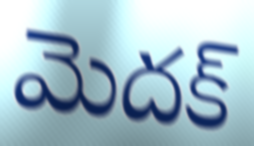
మెదక్